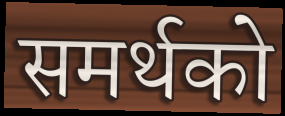
समर्थको